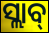
ସ୍ଲାବ୍